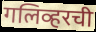
गलिव्हरची